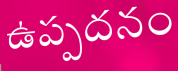
ఉప్పదనం